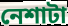
নেশাটা